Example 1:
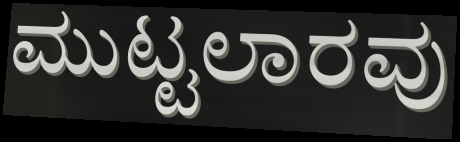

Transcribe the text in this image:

ಮುಟ್ಟಲಾರವು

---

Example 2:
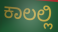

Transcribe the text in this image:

ಕಾಲಲ್ಲಿ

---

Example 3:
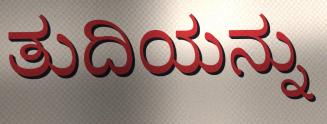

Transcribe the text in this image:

ತುದಿಯನ್ನು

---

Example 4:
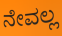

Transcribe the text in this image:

ನೇವಲ್ಲ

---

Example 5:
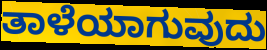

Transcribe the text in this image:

ತಾಳೆಯಾಗುವುದು